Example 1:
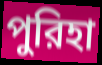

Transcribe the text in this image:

পুরিহা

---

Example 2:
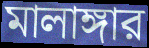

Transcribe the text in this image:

মালাঙ্গার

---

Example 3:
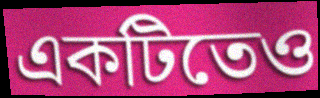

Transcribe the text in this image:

একটিতেও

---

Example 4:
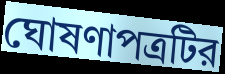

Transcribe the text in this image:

ঘোষণাপত্রটির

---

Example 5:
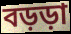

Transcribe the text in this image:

বড়ড়া